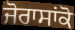
ਜੋਰਾਸਾਂਕੋ